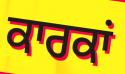
ਕਾਰਕਾਂ